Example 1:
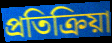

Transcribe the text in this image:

প্ৰতিক্ৰিয়া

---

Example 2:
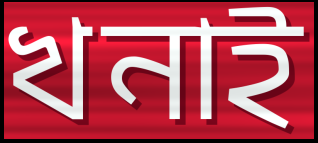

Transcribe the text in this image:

খনাই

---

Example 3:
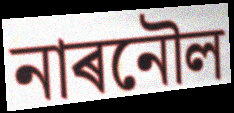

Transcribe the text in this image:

নাৰনৌল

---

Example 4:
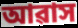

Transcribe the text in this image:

আৱাস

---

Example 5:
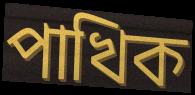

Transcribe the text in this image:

পাখিক